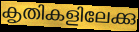
കൃതികളിലേക്കു